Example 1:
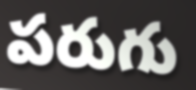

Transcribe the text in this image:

పరుగు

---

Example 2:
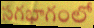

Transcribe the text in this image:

సగభాగంలో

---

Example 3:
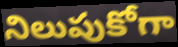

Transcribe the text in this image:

నిలుపుకోగా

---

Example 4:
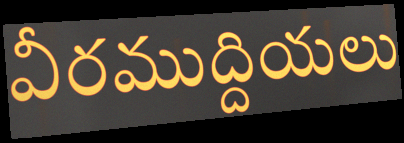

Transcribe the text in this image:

వీరముద్దియలు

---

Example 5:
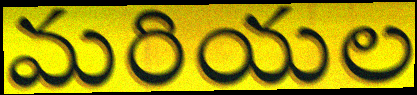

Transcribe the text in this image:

మరియల